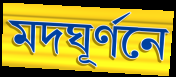
মদঘূর্ণনে